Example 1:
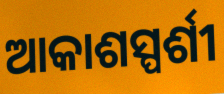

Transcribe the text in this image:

ଆକାଶସ୍ପର୍ଶୀ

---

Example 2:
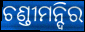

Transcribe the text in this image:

ଚଣ୍ଡୀମନ୍ଦିର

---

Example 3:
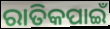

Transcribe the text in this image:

ରାତିକପାଇଁ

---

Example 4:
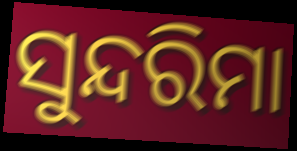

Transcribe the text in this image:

ସୁନ୍ଦରିମା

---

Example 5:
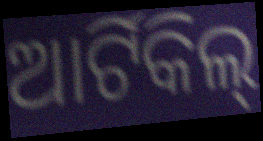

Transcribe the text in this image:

ଆର୍ଟିକିଲ୍